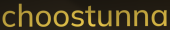
choostunna